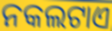
ନକଲଟାଏ